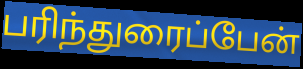
பரிந்துரைப்பேன்